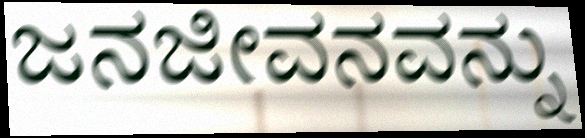
ಜನಜೀವನವನ್ನು